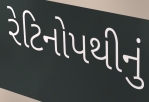
રેટિનોપથીનું